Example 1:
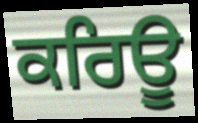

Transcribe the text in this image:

ਕਰਿਊ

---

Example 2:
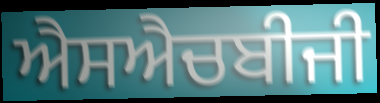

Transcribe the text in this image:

ਐਸਐਚਬੀਜੀ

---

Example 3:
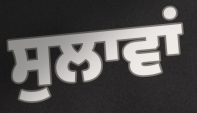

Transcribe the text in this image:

ਸੁਲਾਵਾਂ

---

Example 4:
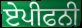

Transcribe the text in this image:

ਏਪੀਫਨੀ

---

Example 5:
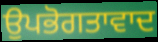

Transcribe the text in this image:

ਉਪਭੋਗਤਾਵਾਦ